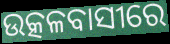
ଉତ୍କଳବାସୀରେ